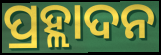
ପ୍ରହ୍ଲାଦନ